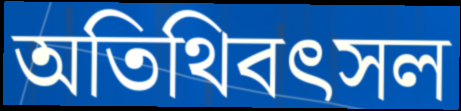
অতিথিবৎসল